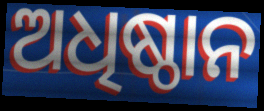
ଅଧିଷ୍ଠାନ